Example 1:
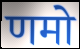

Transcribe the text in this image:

णमो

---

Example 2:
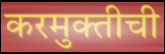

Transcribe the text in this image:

करमुक्तीची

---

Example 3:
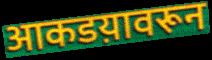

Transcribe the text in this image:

आकडय़ावरून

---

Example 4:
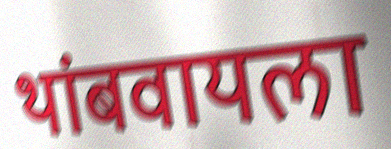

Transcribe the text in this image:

थांबवायला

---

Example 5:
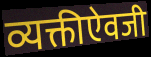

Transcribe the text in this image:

व्यक्तीऐवजी